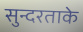
सुन्दरताके